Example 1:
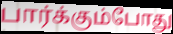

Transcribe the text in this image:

பார்க்கும்போது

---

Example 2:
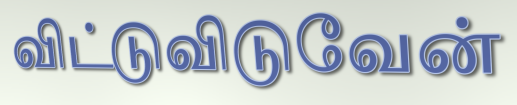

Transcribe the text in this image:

விட்டுவிடுவேன்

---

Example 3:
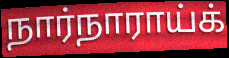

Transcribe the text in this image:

நார்நாராய்க்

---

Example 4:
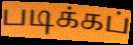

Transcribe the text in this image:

படிக்கப்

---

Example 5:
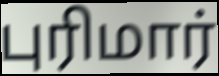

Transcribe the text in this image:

புரிமார்